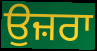
ਉਜ਼ਰਾ